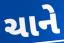
ચાને